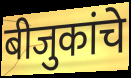
बीजुकांचे